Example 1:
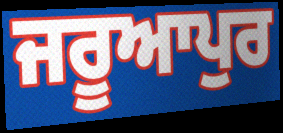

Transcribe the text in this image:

ਜਰੂਆਪੁਰ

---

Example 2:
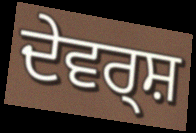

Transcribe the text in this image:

ਦੇਵਰ੍ਸ਼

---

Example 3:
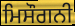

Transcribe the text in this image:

ਮਿਸੌਗਨੀ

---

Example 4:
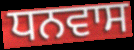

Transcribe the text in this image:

ਧਨਵਾਸ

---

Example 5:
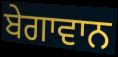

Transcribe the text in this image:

ਬੇਗਾਵਾਨ